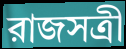
রাজসত্রী